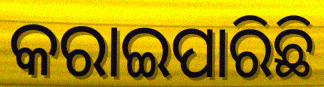
କରାଇପାରିଛି